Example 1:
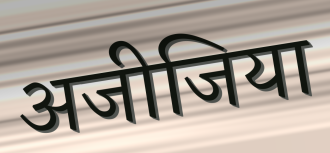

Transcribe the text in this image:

अजीजिया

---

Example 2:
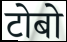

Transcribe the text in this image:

टोबो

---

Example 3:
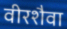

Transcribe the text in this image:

वीरशैवा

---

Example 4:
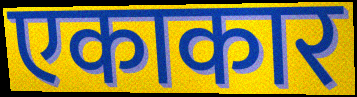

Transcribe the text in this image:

एकाकार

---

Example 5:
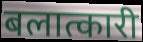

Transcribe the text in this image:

बलात्कारी